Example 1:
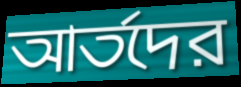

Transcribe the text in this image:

আর্তদের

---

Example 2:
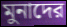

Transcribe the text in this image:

মুনাদের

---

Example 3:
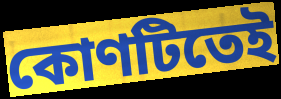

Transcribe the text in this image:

কোণটিতেই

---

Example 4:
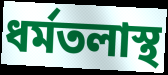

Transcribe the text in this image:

ধর্মতলাস্থ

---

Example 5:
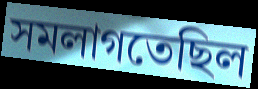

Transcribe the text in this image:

সমলাগতেছিল